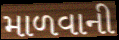
માળવાની